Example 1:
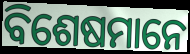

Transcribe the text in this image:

ବିଶେଷମାନେ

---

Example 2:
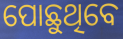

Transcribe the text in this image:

ପୋଛୁଥିବେ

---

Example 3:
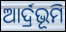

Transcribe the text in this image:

ଆର୍ଦ୍ରଭୂମି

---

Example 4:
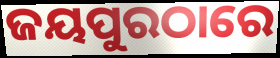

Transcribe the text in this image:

ଜୟପୁରଠାରେ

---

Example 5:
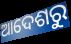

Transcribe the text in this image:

ଆଦେଶରୁ